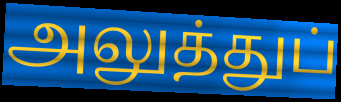
அலுத்துப்